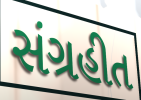
સંગ્રહીત